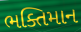
ભક્તિમાન